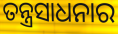
ତନ୍ତ୍ରସାଧନାର